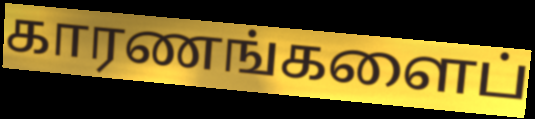
காரணங்களைப்